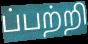
ப்பற்றி